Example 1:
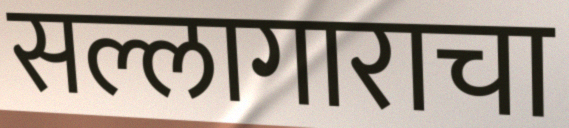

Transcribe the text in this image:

सल्लागाराचा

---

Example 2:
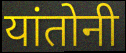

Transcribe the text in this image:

यांतोनी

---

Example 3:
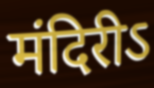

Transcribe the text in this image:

मंदिरीऽ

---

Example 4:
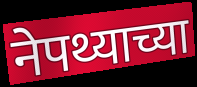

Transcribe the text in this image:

नेपथ्याच्या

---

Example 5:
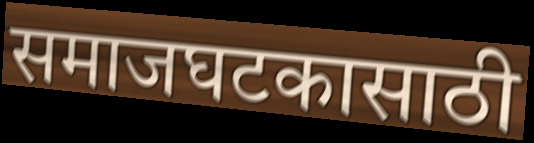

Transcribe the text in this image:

समाजघटकासाठी